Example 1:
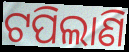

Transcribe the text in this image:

ଟପିଲାଣି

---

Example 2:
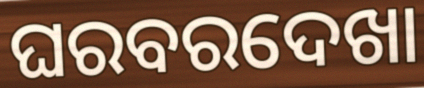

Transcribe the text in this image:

ଘରବରଦେଖା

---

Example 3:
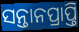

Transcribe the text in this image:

ସନ୍ତାନପ୍ରାପ୍ତି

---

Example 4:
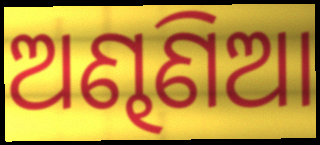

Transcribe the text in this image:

ଅଣ୍ଢଣିଆ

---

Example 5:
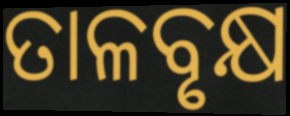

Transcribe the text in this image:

ତାଳବୃକ୍ଷ